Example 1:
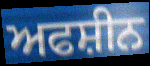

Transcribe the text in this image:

ਅਫਸ਼ੀਨ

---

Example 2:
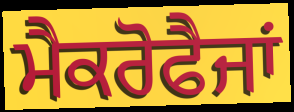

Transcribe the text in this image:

ਮੈਕਰੋਫੈਜਾਂ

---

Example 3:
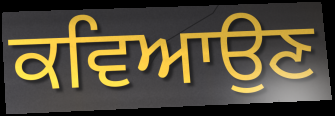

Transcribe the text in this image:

ਕਵਿਆਉਣ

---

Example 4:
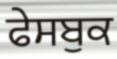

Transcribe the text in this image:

ਫੇਸਬੁਕ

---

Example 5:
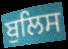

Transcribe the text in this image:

ਬੁਲਿਸ